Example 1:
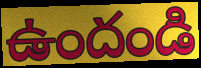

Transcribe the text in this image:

ఉందండి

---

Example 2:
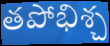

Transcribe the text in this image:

తపోభిశ్చ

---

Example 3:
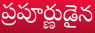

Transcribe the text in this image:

ప్రపూర్ణుడైన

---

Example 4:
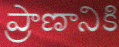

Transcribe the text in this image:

ప్రాణానికి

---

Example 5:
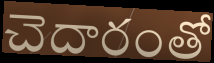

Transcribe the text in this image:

చెదారంతో